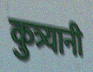
कुत्र्यानी